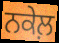
ਨਕੇਲ਼